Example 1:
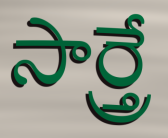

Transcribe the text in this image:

సార్త్రే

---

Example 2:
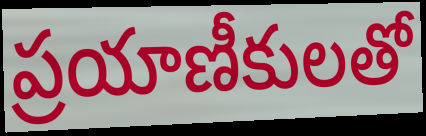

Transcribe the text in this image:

ప్రయాణీకులతో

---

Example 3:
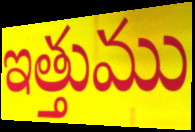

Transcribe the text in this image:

ఇత్తుము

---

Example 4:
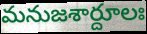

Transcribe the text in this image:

మనుజశార్దూలః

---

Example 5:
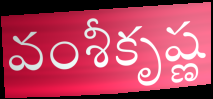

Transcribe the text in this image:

వంశీకృష్ణ